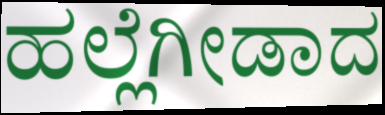
ಹಲ್ಲೆಗೀಡಾದ